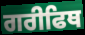
ਗਰੀਫਿਥ